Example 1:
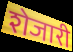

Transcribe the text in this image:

शेजारी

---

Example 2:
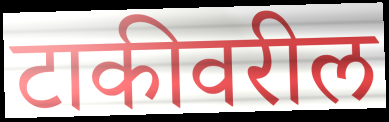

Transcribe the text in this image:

टाकीवरील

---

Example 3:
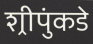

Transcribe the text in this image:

श्रीपुंकडे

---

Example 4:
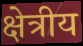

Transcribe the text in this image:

क्षेत्रीय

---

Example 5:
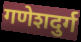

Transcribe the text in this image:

गणेशदुर्ग